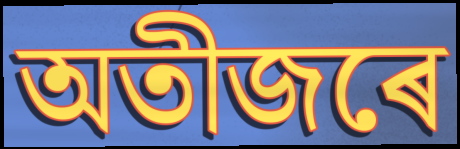
অতীজৰে